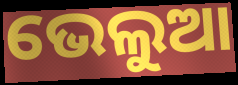
ଭେଲୁଆ